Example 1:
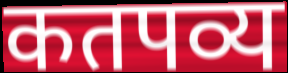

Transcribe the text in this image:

कतपव्य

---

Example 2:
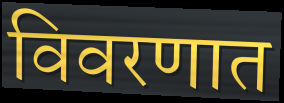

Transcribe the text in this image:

विवरणात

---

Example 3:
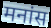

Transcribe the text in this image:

मनांस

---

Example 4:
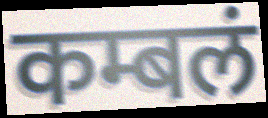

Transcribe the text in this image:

कम्बलं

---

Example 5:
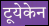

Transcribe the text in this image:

टूयेकेन